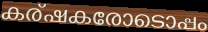
കര്ഷകരോടൊപ്പം